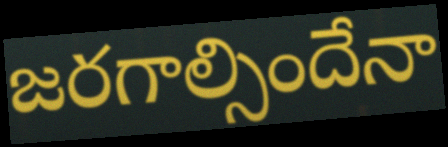
జరగాల్సిందేనా